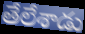
తేలేశాడు